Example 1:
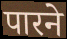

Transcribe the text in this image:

पारने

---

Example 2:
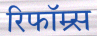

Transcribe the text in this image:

रिफॉम्र्स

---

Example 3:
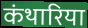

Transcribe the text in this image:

कंथारिया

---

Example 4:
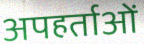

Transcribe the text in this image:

अपहर्ताओं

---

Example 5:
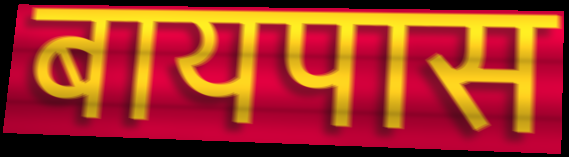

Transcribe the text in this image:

बायपास